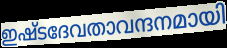
ഇഷ്ടദേവതാവന്ദനമായി